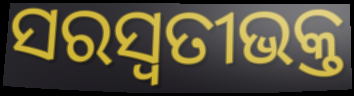
ସରସ୍ୱତୀଭକ୍ତ